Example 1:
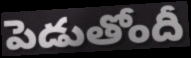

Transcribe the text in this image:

పెడుతోందీ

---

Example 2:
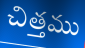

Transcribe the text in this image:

చిత్తము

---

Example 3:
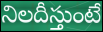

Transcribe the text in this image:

నిలదీస్తుంటే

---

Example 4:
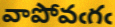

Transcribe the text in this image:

వాపోవఁగఁ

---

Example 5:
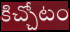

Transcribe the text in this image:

కిచ్చోటం